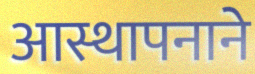
आस्थापनाने